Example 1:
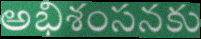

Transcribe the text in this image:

అభిశంసనకు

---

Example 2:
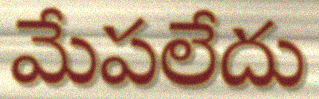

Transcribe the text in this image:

మేపలేదు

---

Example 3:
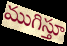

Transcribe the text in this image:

ముగిస్తూ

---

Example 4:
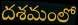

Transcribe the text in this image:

దశమంలో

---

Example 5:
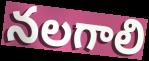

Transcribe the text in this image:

నలగాలి